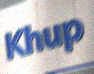
Khup